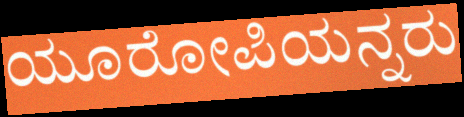
ಯೂರೋಪಿಯನ್ನರು